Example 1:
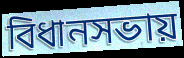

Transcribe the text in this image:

বিধানসভায়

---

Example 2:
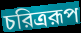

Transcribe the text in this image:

চরিত্ররূপ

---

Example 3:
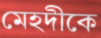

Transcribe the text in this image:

মেহদীকে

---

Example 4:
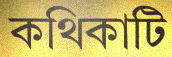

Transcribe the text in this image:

কথিকাটি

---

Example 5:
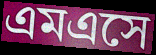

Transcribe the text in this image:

এমএসে